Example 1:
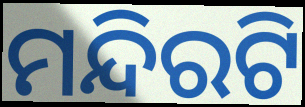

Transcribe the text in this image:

ମନ୍ଦିରଟି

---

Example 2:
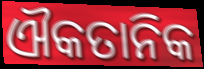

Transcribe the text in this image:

ଐକତାନିକ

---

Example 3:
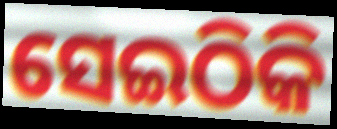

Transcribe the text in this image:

ସେଇଠିକି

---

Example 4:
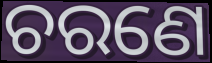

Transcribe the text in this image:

ଚରଣେ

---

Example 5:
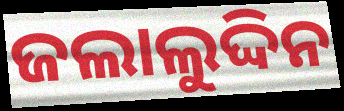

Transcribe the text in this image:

ଜଲାଲୁଦ୍ଦିନ